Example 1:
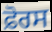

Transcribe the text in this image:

ਫ਼ੋਰਸ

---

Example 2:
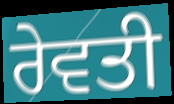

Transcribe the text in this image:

ਰੇਵਤੀ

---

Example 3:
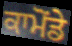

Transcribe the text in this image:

ਕਾਮੋਂਡੇ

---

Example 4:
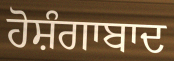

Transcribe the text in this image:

ਹੋਸ਼ੰਗਾਬਾਦ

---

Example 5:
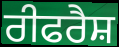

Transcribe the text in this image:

ਰੀਫਰੈਸ਼